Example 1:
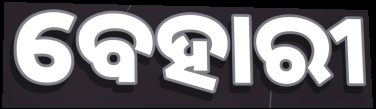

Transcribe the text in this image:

ବେହାରୀ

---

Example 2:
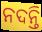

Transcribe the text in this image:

ନଦନ୍ତି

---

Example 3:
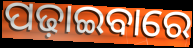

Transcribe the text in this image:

ପଢ଼ାଇବାରେ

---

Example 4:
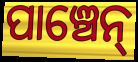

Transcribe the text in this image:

ପାଞ୍ଚେନ୍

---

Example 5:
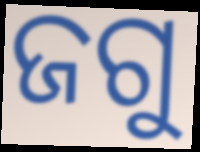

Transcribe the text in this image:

ଜଗୁ